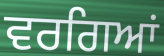
ਵਰਗਿਆਂ